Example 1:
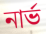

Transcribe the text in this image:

নার্ভ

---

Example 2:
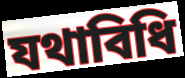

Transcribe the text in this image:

যথাবিধি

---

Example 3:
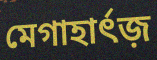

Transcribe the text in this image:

মেগাহার্ৎজ়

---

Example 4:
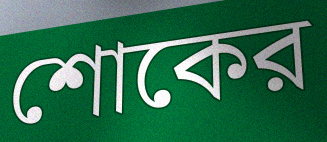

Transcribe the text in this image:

শোকের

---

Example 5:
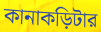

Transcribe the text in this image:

কানাকড়িটার